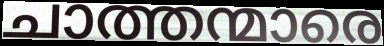
ചാത്തന്മാരെ